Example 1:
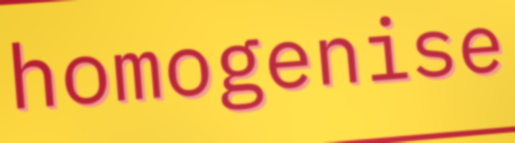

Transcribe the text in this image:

homogenise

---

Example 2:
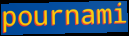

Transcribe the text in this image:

pournami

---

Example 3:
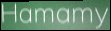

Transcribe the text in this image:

Hamamy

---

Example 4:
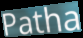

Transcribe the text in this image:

Patha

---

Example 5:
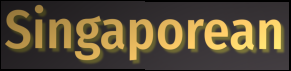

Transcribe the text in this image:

Singaporean